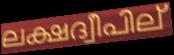
ലക്ഷദ്വീപില്